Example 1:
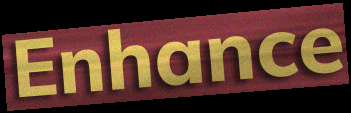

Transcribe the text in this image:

Enhance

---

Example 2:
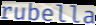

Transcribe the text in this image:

rubella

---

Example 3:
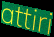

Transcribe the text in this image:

attiri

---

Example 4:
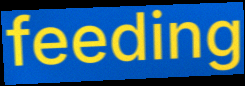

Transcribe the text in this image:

feeding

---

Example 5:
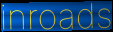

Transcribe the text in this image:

inroads